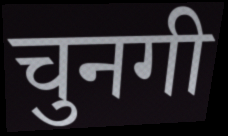
चुनगी